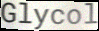
Glycol